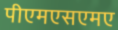
पीएमएसएमए